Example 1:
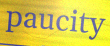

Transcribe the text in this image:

paucity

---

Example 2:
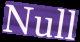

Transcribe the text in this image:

Null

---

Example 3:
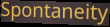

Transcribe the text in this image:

Spontaneity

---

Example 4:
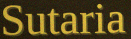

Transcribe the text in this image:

Sutaria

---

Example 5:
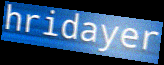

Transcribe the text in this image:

hridayer